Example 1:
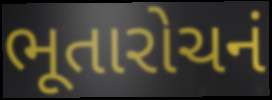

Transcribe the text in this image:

ભૂતારોચનં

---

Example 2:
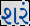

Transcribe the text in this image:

શરં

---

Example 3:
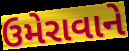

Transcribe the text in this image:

ઉમેરાવાને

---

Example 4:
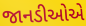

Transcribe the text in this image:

જાનડીઓએ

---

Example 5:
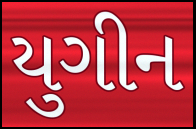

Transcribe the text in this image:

યુગીન